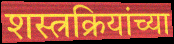
शस्त्रक्रियांच्या